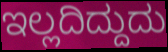
ಇಲ್ಲದಿದ್ದುದು